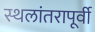
स्थलांतरापूर्वी